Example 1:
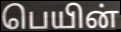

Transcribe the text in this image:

பெயின்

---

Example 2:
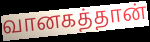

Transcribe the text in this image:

வானகத்தான்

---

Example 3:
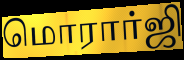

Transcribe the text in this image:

மொரார்ஜி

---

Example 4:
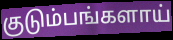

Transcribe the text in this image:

குடும்பங்களாய்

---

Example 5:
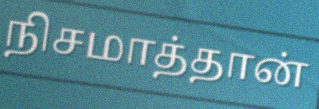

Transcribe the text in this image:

நிசமாத்தான்